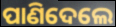
ପାଣିଦେଲେ